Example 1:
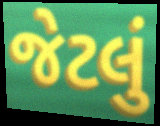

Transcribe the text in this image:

જેટલું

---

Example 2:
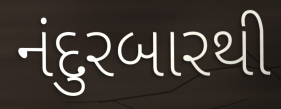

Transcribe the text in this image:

નંદુરબારથી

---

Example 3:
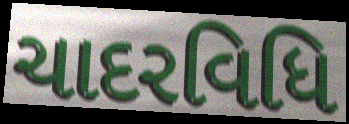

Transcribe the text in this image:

ચાદરવિધિ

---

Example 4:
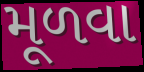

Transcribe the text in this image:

મૂળવા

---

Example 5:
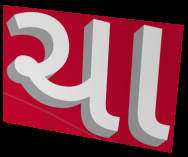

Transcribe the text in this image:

ચા